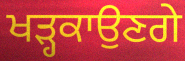
ਖੜ੍ਹਕਾਉਣਗੇ